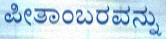
ಪೀತಾಂಬರವನ್ನು